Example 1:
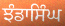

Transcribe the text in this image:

ਝੰਡਾਸਿੰਘ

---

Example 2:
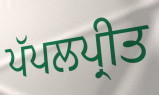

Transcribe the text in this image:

ਪੱਪਲਪ੍ਰੀਤ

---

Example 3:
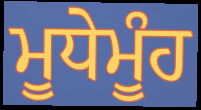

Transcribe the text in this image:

ਮੂਧੇਮੂੰਹ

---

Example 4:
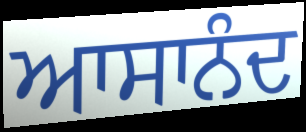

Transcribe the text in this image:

ਆਸਾਨੰਦ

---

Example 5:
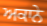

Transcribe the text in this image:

ਅਕਾਨੇ